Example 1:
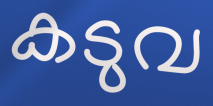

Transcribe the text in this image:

കടുവ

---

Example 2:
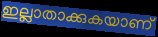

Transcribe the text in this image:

ഇല്ലാതാക്കുകയാണ്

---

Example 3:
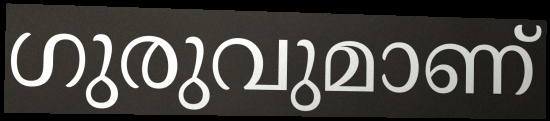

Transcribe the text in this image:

ഗുരുവുമാണ്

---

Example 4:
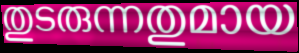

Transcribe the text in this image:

തുടരുന്നതുമായ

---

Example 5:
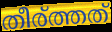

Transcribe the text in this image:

തീര്ത്തത്